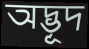
অদ্ভূদ